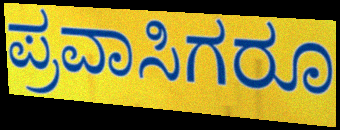
ಪ್ರವಾಸಿಗರೂ